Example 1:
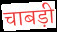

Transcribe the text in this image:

चाबड़ी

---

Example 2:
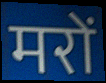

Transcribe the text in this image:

मरों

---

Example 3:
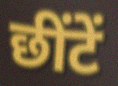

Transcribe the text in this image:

छींटें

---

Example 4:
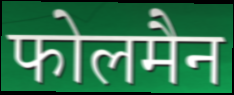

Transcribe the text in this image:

फोलमैन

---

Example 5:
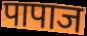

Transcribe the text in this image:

पापाज